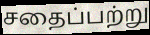
சதைப்பற்று